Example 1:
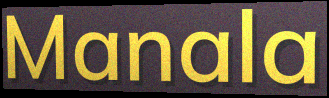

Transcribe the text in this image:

Manala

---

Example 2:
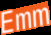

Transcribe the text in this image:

Emm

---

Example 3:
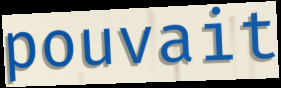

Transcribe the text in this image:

pouvait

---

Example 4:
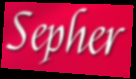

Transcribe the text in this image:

Sepher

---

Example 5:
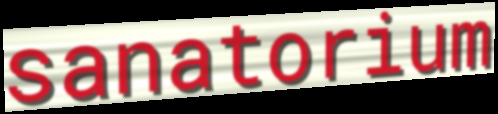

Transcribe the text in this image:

sanatorium